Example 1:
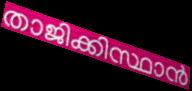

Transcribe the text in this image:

താജിക്കിസ്ഥാൻ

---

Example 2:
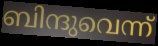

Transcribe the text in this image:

ബിന്ദുവെന്ന്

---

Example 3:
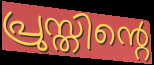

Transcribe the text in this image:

പ്രുസ്തിന്റെ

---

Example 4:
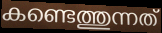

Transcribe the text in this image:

കണ്ടെത്തുന്നത്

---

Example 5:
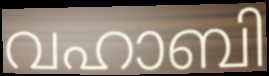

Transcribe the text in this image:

വഹാബി